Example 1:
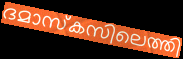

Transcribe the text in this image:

ദമാസ്കസിലെത്തി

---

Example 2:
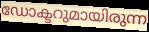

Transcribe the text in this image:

ഡോക്ടറുമായിരുന്ന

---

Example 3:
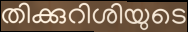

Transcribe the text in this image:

തിക്കുറിശിയുടെ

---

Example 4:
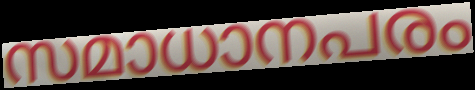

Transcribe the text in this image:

സമാധാനപരം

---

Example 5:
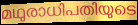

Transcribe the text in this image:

മഥുരാധിപതിയുടെ